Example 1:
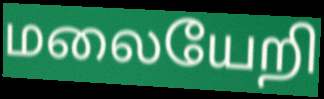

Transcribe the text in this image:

மலையேறி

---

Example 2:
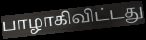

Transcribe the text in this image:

பாழாகிவிட்டது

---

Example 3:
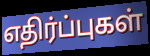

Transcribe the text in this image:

எதிர்ப்புகள்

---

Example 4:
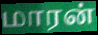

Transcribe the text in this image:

மாரன்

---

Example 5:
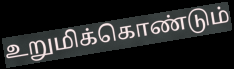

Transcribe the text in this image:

உறுமிக்கொண்டும்